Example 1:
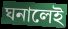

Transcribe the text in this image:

ঘনালেই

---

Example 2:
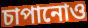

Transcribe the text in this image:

চাপানোও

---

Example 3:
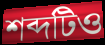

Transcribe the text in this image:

শব্দটিও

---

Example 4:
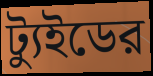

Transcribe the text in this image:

ট্যুইডের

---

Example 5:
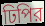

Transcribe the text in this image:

ঢিপির